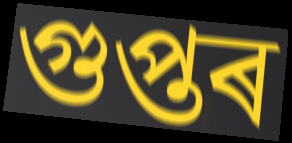
গুপ্তৰ